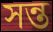
সন্ত